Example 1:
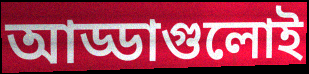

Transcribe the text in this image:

আড্ডাগুলোই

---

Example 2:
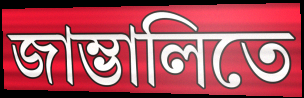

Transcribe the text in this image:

জাম্ভালিতে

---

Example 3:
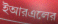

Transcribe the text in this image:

ইআরএলের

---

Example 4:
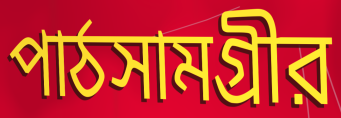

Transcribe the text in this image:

পাঠসামগ্রীর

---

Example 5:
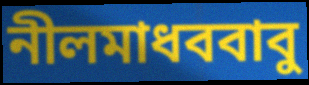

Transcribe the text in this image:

নীলমাধববাবু